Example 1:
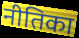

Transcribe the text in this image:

नीतिका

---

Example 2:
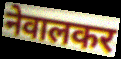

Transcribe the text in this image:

नेवालकर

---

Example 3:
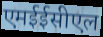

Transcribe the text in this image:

एमईईसीएल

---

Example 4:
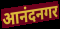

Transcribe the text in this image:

आनंदनगर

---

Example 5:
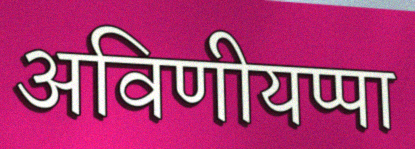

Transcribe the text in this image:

अविणीयप्पा